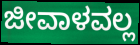
ಜೀವಾಳವಲ್ಲ